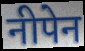
नीपेन